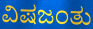
ವಿಷಜಂತು